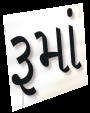
રૂમાં